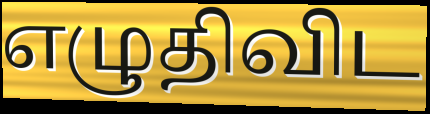
எழுதிவிட